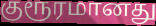
குரூரமானது